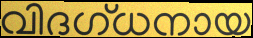
വിദഗ്ധനായ